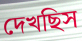
দেখছিস